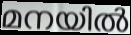
മനയിൽ